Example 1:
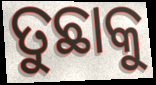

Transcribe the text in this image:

ତୁଛାକୁ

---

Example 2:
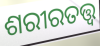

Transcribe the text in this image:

ଶରୀରତତ୍ତ୍ୱ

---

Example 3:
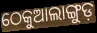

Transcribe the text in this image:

ଠେକୁଆଲାଙ୍ଗୁଡ଼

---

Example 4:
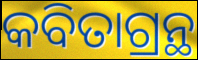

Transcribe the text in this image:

କବିତାଗ୍ରନ୍ଥ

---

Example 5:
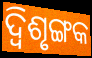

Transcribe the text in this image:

ଦ୍ବିଶୃଙ୍ଗକ